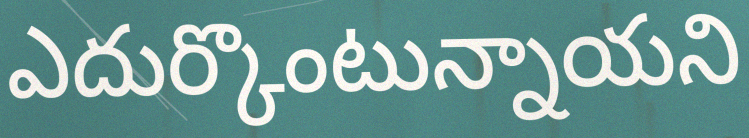
ఎదుర్కొంటున్నాయని